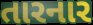
તારનાર